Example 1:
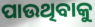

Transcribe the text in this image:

ପାଉଥିବାକୁ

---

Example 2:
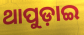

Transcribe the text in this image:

ଥାପୁଡ଼ାଇ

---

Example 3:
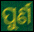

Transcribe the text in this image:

ପୁର୍ଣ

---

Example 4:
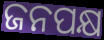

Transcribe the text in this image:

ଜନପକ୍ଷ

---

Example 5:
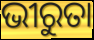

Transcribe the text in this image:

ଭୀରୁତା